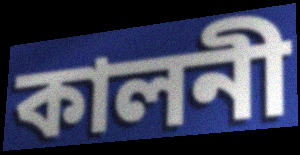
কালনী